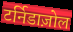
टर्निडाज़ोल